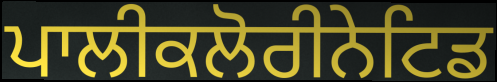
ਪਾਲੀਕਲੋਰੀਨੇਟਿਡ